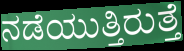
ನಡೆಯುತ್ತಿರುತ್ತೆ